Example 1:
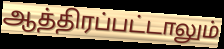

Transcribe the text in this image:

ஆத்திரப்பட்டாலும்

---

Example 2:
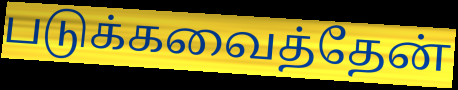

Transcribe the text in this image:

படுக்கவைத்தேன்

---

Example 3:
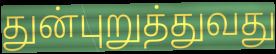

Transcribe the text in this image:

துன்புறுத்துவது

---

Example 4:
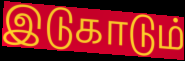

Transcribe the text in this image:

இடுகாடும்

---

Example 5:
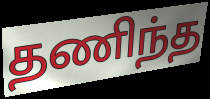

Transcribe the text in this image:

தணிந்த